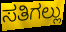
ಸತಿಗಲ್ಲು